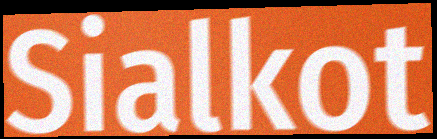
Sialkot